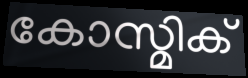
കോസ്മിക്